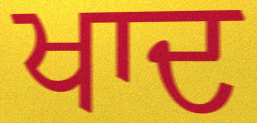
ਖਾਦ